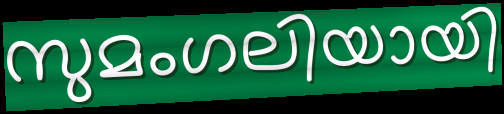
സുമംഗലിയായി